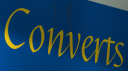
Converts